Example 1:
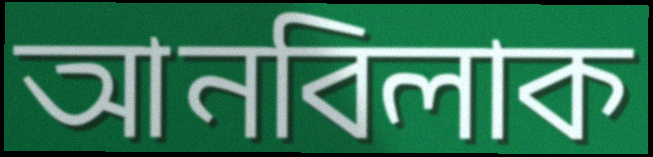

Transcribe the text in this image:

আনবিলাক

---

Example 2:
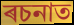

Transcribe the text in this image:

ৰচনাত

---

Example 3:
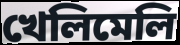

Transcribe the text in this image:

খেলিমেলি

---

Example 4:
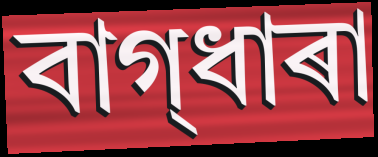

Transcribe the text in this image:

বাগ্‌ধাৰা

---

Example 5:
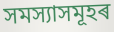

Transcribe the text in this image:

সমস্যাসমূহৰ